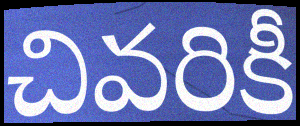
చివరికీ